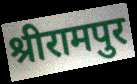
श्रीरामपुर